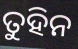
ତୁହିନ